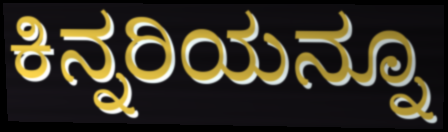
ಕಿನ್ನರಿಯನ್ನೂ